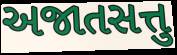
અજાતસત્તુ